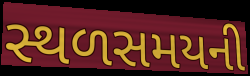
સ્થળસમયની